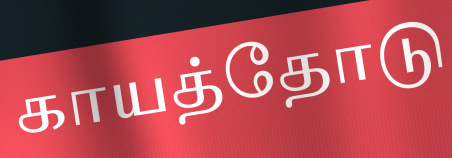
காயத்தோடு